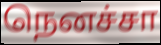
நெனச்சா